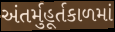
અંતર્મુહૂર્તકાળમાં